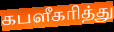
கபளீகரித்து